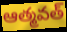
ఆత్మవత్